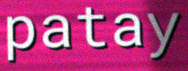
patay